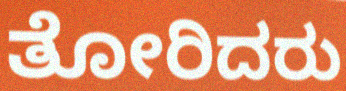
ತೋರಿದರು